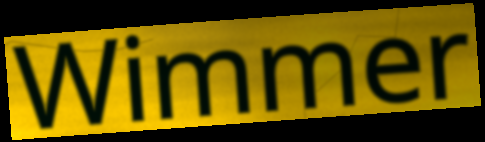
Wimmer